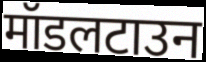
मॉडलटाउन